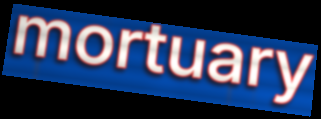
mortuary